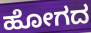
ಹೋಗದ